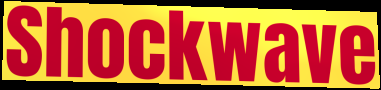
Shockwave